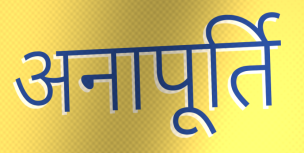
अनापूर्ति